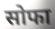
सोफा